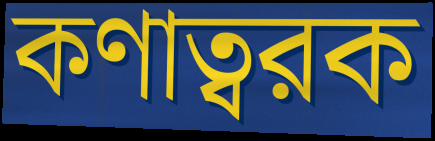
কণাত্বরক